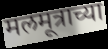
मलमूत्राच्या